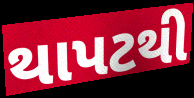
થાપટથી